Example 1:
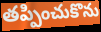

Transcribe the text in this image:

తప్పించుకొను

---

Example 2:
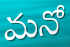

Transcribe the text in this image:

మనో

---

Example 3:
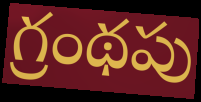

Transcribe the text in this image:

గ్రంథపు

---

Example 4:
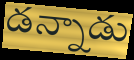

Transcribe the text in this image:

డన్నాడు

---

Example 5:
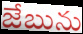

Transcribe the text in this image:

జేబును